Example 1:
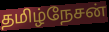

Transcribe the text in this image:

தமிழ்நேசன்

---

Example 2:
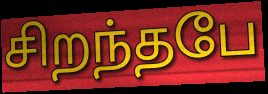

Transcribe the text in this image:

சிறந்தபே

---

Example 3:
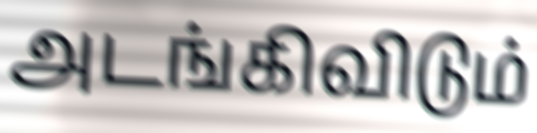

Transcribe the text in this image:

அடங்கிவிடும்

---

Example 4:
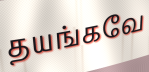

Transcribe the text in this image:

தயங்கவே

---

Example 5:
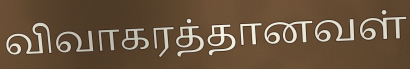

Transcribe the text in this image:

விவாகரத்தானவள்